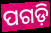
ପଗଡ଼ି